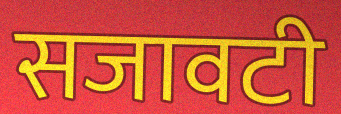
सजावटी